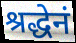
श्रद्धेनं